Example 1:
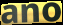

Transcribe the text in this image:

ano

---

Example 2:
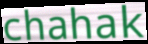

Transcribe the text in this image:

chahak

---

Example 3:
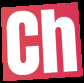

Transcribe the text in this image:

Ch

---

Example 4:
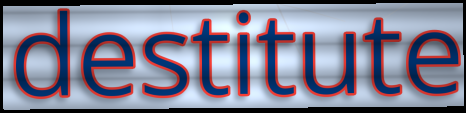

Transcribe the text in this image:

destitute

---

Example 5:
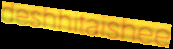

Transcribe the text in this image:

deshhitaishee